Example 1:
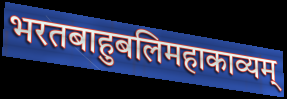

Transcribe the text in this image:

भरतबाहुबलिमहाकाव्यम्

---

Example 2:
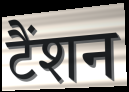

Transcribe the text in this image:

टैंशन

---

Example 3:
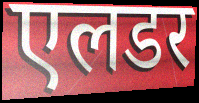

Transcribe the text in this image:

एलडर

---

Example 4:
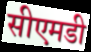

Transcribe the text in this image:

सीएमडी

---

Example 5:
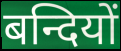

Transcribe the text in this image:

बन्दियों